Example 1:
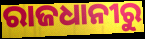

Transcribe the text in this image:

ରାଜଧାନୀରୁ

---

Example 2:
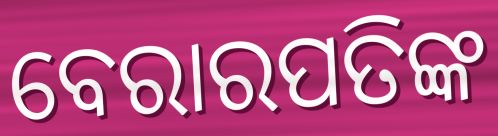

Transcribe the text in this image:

ବେରାରପତିଙ୍କ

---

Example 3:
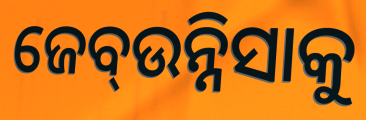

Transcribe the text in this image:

ଜେବ୍ଉନ୍ନିସାକୁ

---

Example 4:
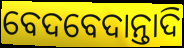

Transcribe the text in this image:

ବେଦବେଦାନ୍ତାଦି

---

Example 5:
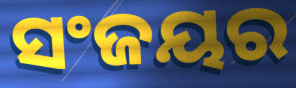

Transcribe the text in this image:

ସଂଜୟର